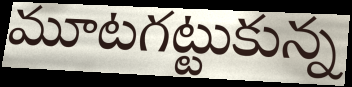
మూటగట్టుకున్న